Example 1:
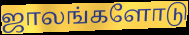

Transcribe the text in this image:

ஜாலங்களோடு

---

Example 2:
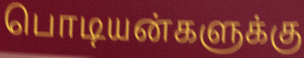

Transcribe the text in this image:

பொடியன்களுக்கு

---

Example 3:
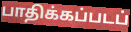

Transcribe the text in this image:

பாதிக்கப்படப்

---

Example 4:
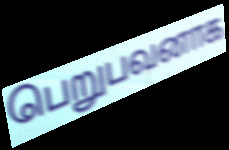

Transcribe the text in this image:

பெறுபவனாக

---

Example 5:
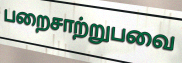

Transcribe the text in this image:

பறைசாற்றுபவை